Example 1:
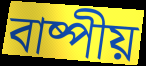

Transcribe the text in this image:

বাষ্পীয়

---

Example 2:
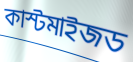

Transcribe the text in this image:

কাস্টমাইজড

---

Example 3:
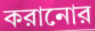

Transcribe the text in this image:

করানোর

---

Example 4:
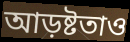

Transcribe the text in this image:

আড়ষ্টতাও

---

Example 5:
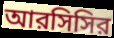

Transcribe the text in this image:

আরসিসির